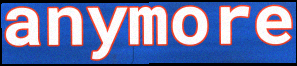
anymore